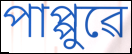
পাপ্পুৱে